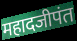
महादजीपंत